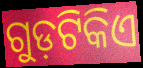
ଗୁଡ଼ଟିକିଏ